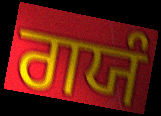
ਗਯੰ